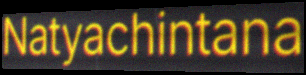
Natyachintana